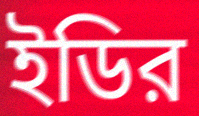
ইডির